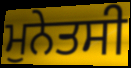
ਮੁਨੇਤਸੀ